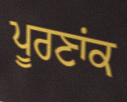
ਪੂਰਣਾਂਕ